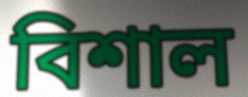
বিশাল